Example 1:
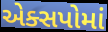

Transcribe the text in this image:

એક્સપોમાં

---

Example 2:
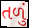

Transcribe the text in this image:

તળું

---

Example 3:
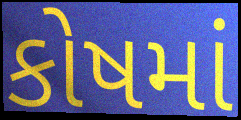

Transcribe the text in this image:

કોષમાં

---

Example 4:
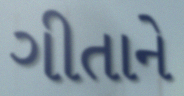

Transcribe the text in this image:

ગીતાને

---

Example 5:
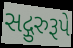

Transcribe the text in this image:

સદ્ગુરુરૂપે